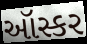
ઑસ્કર